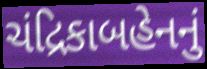
ચંદ્રિકાબહેનનું